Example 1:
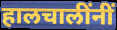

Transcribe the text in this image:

हालचालींनीं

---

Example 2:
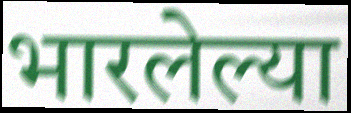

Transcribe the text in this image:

भारलेल्या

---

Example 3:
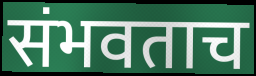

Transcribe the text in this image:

संभवताच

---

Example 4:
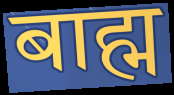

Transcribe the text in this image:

बाह्म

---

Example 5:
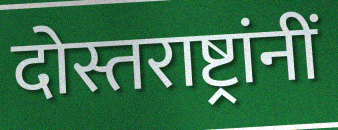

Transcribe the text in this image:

दोस्तराष्ट्रांनीं